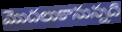
మొదలుకానున్నది